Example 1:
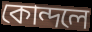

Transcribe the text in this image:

কোন্দলে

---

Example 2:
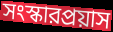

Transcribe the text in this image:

সংস্কারপ্রয়াস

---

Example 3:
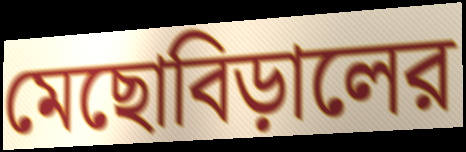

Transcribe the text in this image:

মেছোবিড়ালের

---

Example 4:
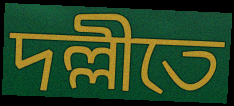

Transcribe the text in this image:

দল্লীতে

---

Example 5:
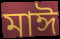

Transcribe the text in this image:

মাঈ